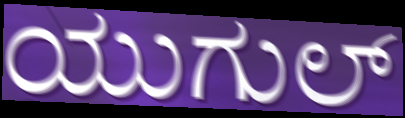
ಯುಗುಲ್